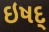
ઇષદ્